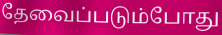
தேவைப்படும்போது